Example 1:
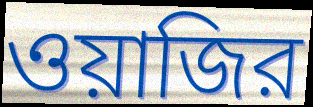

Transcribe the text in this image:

ওয়াজির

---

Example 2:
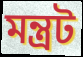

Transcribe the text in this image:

মন্ত্রট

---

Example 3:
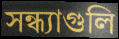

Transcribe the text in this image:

সন্ধ্যাগুলি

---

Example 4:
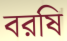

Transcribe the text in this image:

বরষি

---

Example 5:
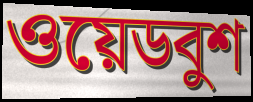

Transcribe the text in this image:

ওয়েডবুশ